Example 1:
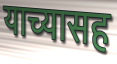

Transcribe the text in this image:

याच्यासह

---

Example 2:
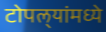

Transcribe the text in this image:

टोपल्यांमध्ये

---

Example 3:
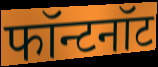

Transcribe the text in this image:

फॉन्टनॉट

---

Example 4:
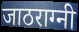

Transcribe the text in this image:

जाठराग्नी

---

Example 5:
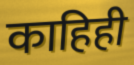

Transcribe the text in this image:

काहिही